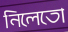
নিলেতো